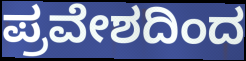
ಪ್ರವೇಶದಿಂದ